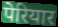
पेरियार